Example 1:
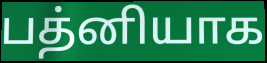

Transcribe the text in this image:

பத்னியாக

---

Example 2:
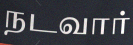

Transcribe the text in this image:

நடவார்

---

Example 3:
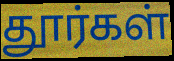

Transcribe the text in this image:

தூர்கள்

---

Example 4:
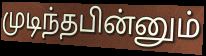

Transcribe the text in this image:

முடிந்தபின்னும்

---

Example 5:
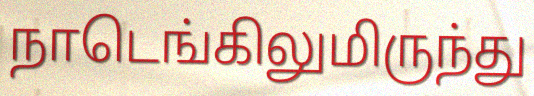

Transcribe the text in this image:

நாடெங்கிலுமிருந்து